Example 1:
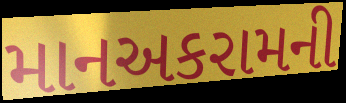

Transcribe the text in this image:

માનઅકરામની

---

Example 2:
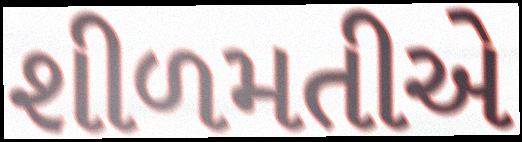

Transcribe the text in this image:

શીળમતીએ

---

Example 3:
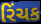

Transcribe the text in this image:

રિંચક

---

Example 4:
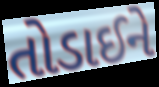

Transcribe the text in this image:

તોડાઈને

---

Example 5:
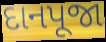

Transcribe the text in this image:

દાનપૂજા